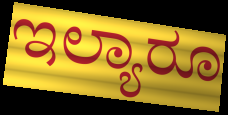
ಇಲ್ಯಾರೂ